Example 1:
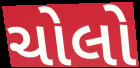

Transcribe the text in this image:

ચોલો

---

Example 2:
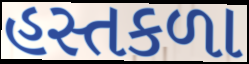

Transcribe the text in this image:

હસ્તકળા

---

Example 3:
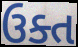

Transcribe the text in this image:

ઉક્ત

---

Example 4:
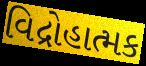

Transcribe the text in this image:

વિદ્રોહાત્મક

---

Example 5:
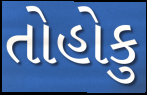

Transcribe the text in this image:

તોહોકુ